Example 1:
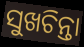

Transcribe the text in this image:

ସୁଖଚିନ୍ତା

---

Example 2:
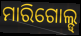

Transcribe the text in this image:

ମାରିଗୋଲ୍ଡ୍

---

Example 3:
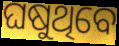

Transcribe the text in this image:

ଘଷୁଥିବେ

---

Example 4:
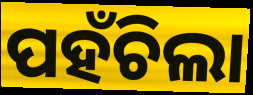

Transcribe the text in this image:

ପହଁଚିଲା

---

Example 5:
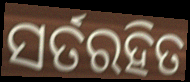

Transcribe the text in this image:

ସର୍ତରହିତ